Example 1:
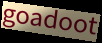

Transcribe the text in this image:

goadoot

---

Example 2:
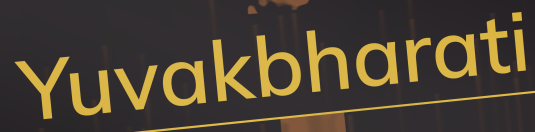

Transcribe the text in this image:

Yuvakbharati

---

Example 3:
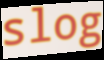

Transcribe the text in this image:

slog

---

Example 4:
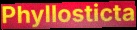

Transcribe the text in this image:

Phyllosticta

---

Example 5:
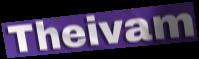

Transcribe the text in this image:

Theivam